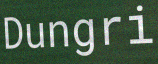
Dungri